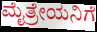
ಮೈತ್ರೇಯನಿಗೆ